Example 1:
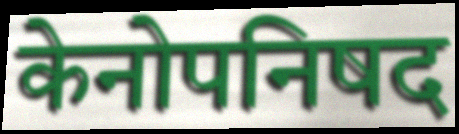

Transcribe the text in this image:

केनोपनिषद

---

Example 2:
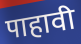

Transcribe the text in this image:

पाहावी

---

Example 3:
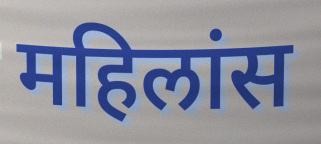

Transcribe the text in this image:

महिलांस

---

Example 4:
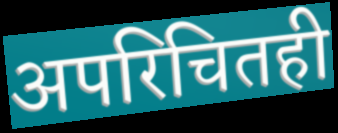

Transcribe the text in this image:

अपरिचितही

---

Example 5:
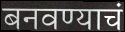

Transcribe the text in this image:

बनवण्याचं